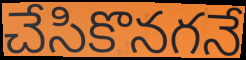
చేసికొనగనే